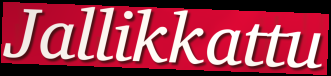
Jallikkattu